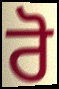
ਰੋ